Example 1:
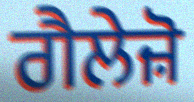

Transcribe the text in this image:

ਗੈਲੇਜ਼ੋ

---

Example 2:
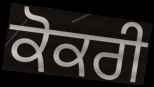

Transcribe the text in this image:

ਕੋਕਰੀ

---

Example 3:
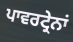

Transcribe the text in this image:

ਪਾਵਰਟ੍ਰੇਨਾਂ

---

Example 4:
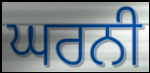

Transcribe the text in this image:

ਘਰਨੀ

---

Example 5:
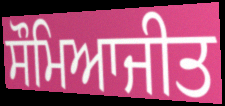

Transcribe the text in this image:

ਸੌਮਿਆਜੀਤ